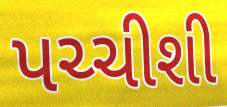
પચ્ચીશી